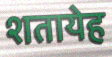
शतायेह